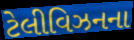
ટેલીવિઝનના